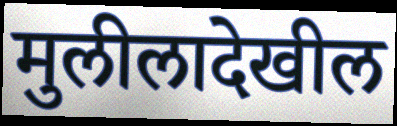
मुलीलादेखील